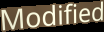
Modified